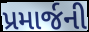
પ્રમાર્જની